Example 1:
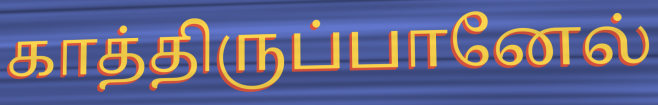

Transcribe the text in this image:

காத்திருப்பானேல்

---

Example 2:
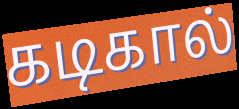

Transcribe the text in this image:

கடிகால்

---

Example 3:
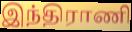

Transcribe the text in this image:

இந்திராணி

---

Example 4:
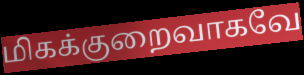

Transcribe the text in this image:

மிகக்குறைவாகவே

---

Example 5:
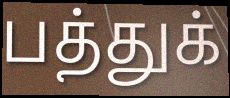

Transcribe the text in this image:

பத்துக்